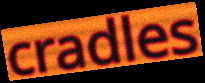
cradles